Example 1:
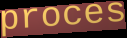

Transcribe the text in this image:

proces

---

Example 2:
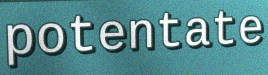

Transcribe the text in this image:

potentate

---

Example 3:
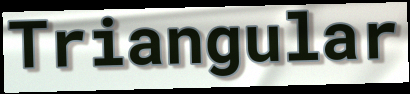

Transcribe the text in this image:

Triangular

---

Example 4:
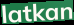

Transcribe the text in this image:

latkan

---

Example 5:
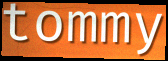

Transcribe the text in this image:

tommy